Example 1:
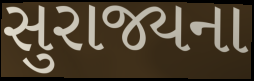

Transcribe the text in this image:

સુરાજ્યના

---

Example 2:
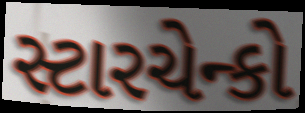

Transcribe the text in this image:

સ્ટારચેન્કો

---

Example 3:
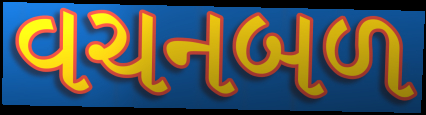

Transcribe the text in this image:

વચનબળ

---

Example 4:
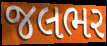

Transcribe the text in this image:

જલભર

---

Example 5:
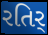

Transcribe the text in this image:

રતિર્